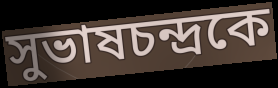
সুভাষচন্দ্রকে